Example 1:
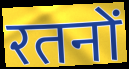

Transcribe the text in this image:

रतनों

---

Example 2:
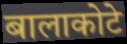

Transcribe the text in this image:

बालाकोटे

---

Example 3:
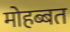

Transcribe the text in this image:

मोहब्‍बत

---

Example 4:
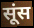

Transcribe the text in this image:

सूंस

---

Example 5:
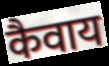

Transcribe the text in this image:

कैवाय